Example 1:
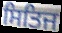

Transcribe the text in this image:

ਸਿਤਿਜ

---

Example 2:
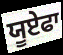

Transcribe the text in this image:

ਯੂਏਫਾ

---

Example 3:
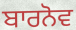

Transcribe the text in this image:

ਬਾਰਨੋਵ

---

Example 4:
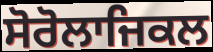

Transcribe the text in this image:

ਸੋਰੋਲਾਜਿਕਲ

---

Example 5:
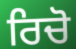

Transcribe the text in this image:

ਰਿਚੋ